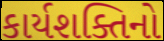
કાર્યશક્તિનો